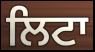
ਲਿਟਾ